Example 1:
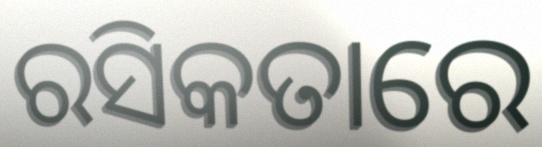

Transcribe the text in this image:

ରସିକତାରେ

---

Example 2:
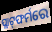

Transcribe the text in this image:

ପ୍ଲାଟ୍‌ଫର୍ମରେ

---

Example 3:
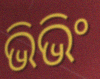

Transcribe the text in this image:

ଭିଭିଂ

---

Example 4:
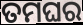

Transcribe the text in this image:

ତମଘର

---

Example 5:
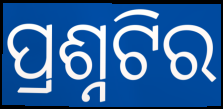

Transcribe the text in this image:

ପ୍ରଶ୍ନଟିର